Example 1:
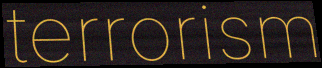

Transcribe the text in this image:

terrorism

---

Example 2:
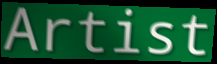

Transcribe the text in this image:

Artist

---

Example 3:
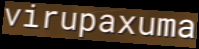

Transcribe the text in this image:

virupaxuma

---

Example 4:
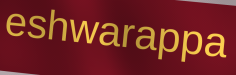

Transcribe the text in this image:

eshwarappa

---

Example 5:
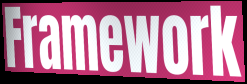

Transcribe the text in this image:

Framework